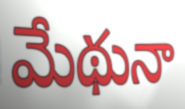
మేథునా